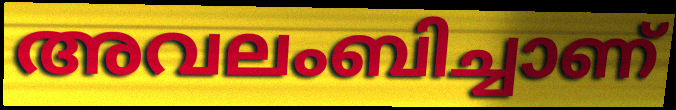
അവലംബിച്ചാണ്